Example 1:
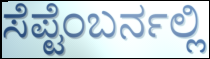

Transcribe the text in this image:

ಸೆಪ್ಟೆಂಬರ್ನಲ್ಲಿ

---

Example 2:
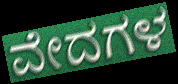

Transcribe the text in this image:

ವೇದಗಳ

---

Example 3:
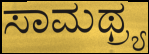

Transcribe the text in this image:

ಸಾಮಥ್ರ್ಯ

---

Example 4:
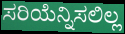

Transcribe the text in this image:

ಸರಿಯೆನ್ನಿಸಲಿಲ್ಲ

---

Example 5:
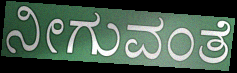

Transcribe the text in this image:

ನೀಗುವಂತೆ